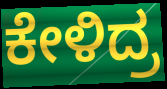
ಕೇಳಿದ್ರ